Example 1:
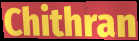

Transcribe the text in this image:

Chithran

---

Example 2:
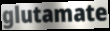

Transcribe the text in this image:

glutamate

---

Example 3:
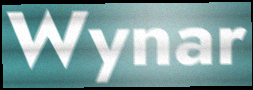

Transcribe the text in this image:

Wynar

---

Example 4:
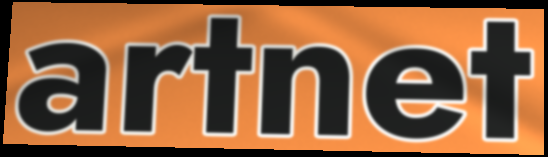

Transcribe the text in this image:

artnet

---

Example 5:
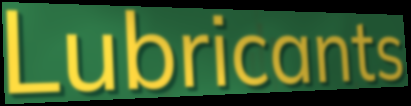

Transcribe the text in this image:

Lubricants